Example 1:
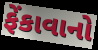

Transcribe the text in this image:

ફેંકાવાનો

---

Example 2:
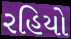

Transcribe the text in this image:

રહિયો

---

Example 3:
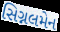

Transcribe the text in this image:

સિગ્નલમેન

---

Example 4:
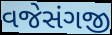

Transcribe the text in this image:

વજેસંગજી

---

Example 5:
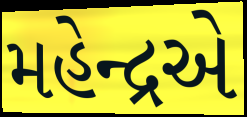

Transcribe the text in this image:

મહેન્દ્રએ